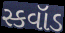
સ્કવૉડ